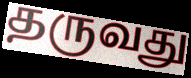
தருவது